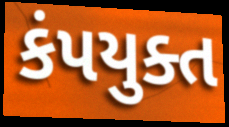
કંપયુક્ત